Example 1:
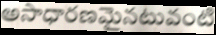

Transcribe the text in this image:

అసాధారణమైనటువంటి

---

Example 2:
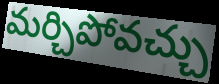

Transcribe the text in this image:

మర్చిపోవచ్చు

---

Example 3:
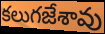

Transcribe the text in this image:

కలుగజేశావు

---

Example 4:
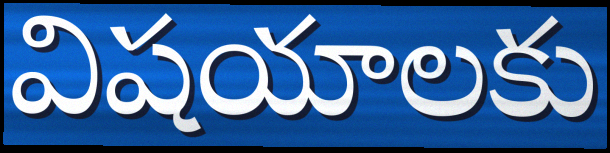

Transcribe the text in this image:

విషయాలకు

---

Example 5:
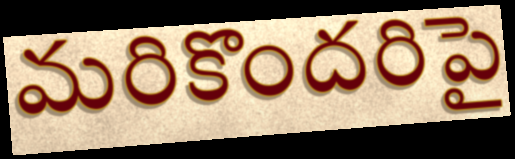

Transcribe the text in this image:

మరికొందరిపై